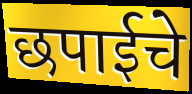
छपाईचे